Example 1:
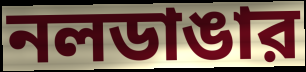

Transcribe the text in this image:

নলডাঙার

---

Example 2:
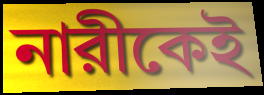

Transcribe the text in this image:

নারীকেই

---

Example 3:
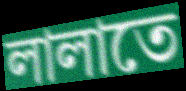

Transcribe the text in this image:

লালাতে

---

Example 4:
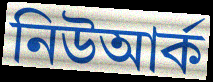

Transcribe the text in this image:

নিউআর্ক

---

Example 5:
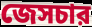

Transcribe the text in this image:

জেসচার